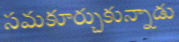
సమకూర్చుకున్నాడు